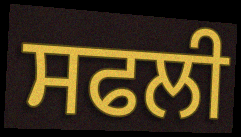
ਸਫਲੀ